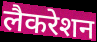
लैकरेशन